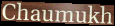
Chaumukh